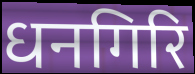
धनगिरि